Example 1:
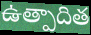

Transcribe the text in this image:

ఉత్పాదిత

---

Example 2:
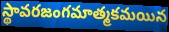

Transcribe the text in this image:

స్థావరజంగమాత్మకమయిన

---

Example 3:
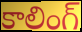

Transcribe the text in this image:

కాలింగ్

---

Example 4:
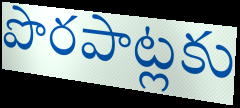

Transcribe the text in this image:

పొరపాట్లకు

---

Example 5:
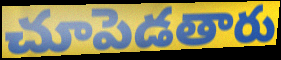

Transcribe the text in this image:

చూపెడతారు